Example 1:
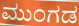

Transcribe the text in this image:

ಮುಂಗಡ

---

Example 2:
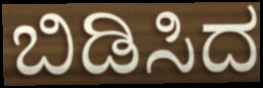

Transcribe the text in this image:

ಬಿಡಿಸಿದ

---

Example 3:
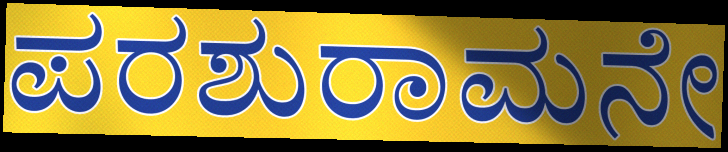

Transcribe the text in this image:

ಪರಶುರಾಮನೇ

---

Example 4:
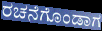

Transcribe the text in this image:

ರಚನೆಗೊಂಡಾಗ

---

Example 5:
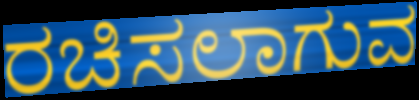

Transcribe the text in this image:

ರಚಿಸಲಾಗುವ